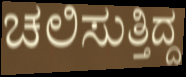
ಚಲಿಸುತ್ತಿದ್ದ